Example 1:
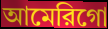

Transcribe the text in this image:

আমেরিগো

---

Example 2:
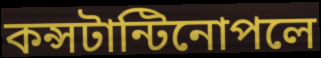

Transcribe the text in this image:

কন্সটান্টিনোপলে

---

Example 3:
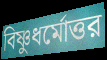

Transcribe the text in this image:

বিষ্ণুধর্মোত্তর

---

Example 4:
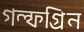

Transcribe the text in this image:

গল্ফগ্রিন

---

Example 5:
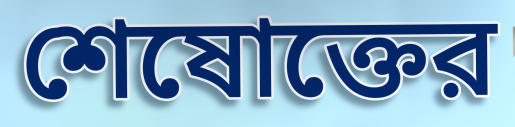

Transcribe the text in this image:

শেষোক্তের